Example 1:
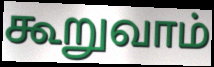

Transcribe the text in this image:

கூறுவாம்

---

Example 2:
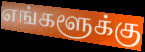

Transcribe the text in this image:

எங்களூக்கு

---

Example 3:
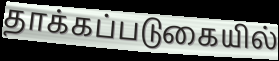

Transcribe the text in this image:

தாக்கப்படுகையில்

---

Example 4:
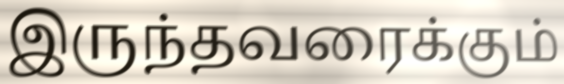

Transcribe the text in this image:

இருந்தவரைக்கும்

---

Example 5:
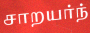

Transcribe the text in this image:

சாறயர்ந்